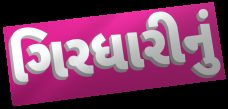
ગિરધારીનું